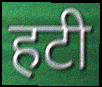
हटी